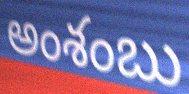
అంశంబు